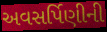
અવસર્પિણીની